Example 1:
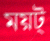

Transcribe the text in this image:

ময়ট্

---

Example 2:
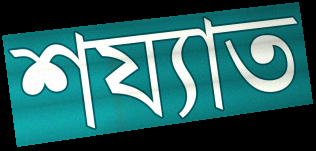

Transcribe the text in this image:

শয্যাত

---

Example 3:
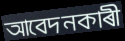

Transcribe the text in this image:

আবেদনকাৰী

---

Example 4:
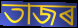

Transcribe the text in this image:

তাজৰ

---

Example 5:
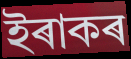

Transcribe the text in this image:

ইৰাকৰ